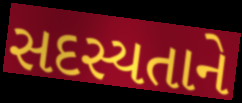
સદસ્યતાને